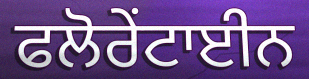
ਫਲੋਰੇਂਟਾਈਨ